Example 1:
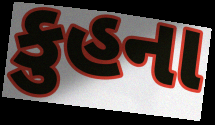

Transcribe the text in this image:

કુહના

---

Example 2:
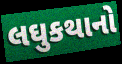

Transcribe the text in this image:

લઘુકથાનો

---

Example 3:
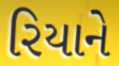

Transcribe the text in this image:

રિયાને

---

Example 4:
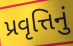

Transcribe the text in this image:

પ્રવૃત્તિનું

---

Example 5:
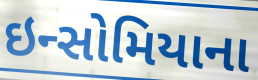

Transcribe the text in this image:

ઇન્સોમિયાના